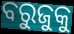
ବରୁଜୁକୁ